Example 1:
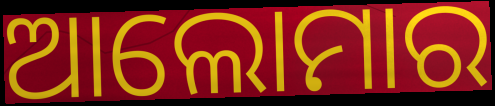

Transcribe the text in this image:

ଆଲୋମାର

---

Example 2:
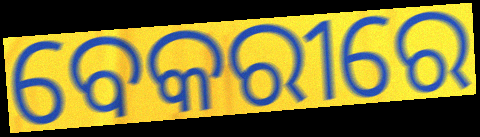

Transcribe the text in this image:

ବେକରୀରେ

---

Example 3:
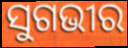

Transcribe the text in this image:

ସୁଗଭୀର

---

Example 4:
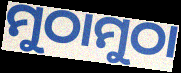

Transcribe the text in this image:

ମୁଠାମୁଠା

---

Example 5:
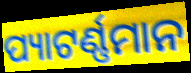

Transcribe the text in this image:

ପ୍ୟାଟର୍ଣ୍ଣମାନ